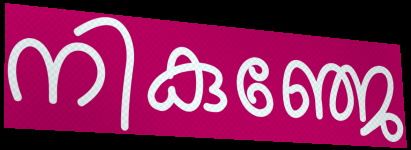
നികുഞ്ജേ